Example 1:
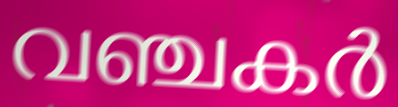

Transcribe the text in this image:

വഞ്ചകർ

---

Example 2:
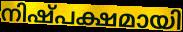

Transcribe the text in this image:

നിഷ്പക്ഷമായി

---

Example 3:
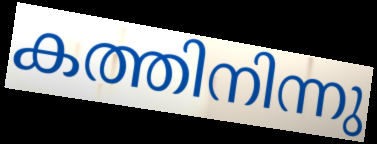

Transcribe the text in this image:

കത്തിനിന്നു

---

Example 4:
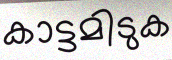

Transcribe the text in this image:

കാട്ടമിടുക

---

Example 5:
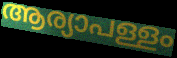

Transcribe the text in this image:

ആര്യാപള്ളം